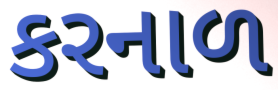
કરનાળ